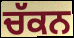
ਚੱਕਨ